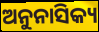
ଅନୁନାସିକ୍ୟ